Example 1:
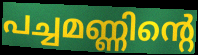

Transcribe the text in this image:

പച്ചമണ്ണിന്റെ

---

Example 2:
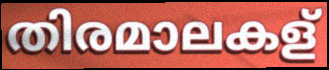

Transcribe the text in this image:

തിരമാലകള്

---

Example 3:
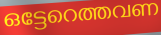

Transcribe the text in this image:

ഒട്ടേറെത്തവണ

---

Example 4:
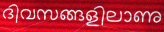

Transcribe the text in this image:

ദിവസങ്ങളിലാണു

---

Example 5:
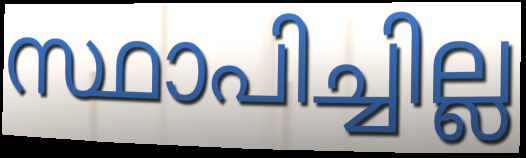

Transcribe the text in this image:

സ്ഥാപിച്ചില്ല